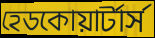
হেডকোয়ার্টার্স